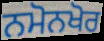
ਨਮੋਨਖੋਰ